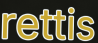
rettis